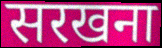
सरखना